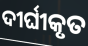
ଦୀର୍ଘୀକୃତ